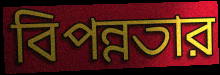
বিপন্নতার